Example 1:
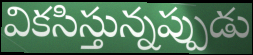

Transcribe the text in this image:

వికసిస్తున్నప్పుడు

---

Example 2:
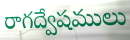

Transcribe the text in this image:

రాగద్వేషములు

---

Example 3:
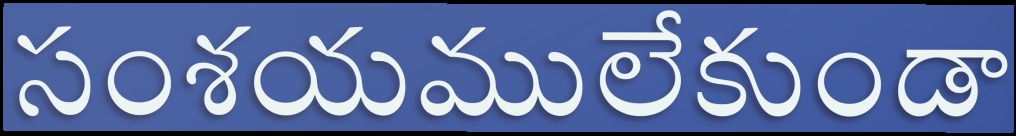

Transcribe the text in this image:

సంశయములేకుండా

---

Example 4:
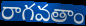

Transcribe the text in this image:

రాగవతాం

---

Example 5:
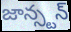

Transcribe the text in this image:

జాన్స్టన్